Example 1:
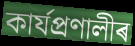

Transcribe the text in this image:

কাৰ্যপ্ৰণালীৰ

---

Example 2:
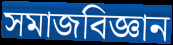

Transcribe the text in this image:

সমাজবিজ্ঞান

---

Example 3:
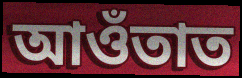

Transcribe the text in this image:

আওঁতাত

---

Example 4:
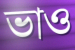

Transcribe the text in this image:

ভাও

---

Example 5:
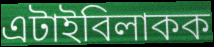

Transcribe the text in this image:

এটাইবিলাকক